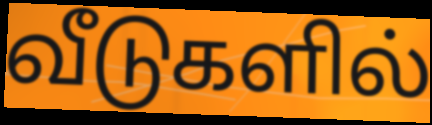
வீடுகளில்